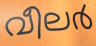
വീലർ